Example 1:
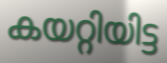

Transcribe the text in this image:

കയറ്റിയിട്ട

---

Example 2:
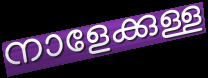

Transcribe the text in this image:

നാളേക്കുള്ള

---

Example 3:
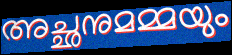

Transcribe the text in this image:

അച്ഛനുമമ്മയും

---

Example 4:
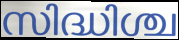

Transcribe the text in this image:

സിദ്ധിശ്ച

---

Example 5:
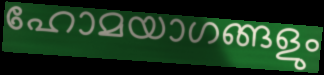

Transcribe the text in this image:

ഹോമയാഗങ്ങളും